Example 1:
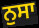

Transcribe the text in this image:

ਨੁਸਾ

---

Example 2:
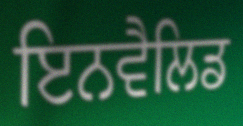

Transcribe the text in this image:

ਇਨਵੈਲਿਡ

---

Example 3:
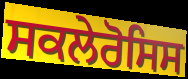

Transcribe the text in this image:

ਸਕਲੇਰੋਸਿਸ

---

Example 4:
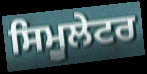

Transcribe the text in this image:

ਸਿਮੂਲੇਟਰ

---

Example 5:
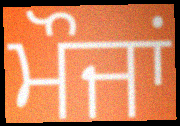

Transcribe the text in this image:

ਮੌਜਾਂ